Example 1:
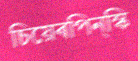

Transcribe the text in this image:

চিয়েৰপিন্‌স্কি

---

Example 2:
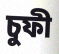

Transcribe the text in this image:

চুফী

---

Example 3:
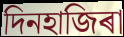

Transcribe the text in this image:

দিনহাজিৰা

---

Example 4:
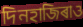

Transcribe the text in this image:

দিনহাজিৰাও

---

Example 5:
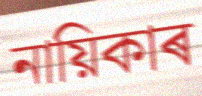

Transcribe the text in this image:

নায়িকাৰ